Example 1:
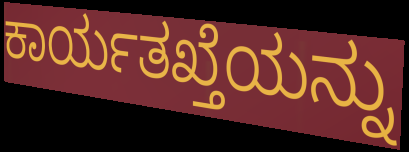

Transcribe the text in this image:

ಕಾರ್ಯತಖ್ತೆಯನ್ನು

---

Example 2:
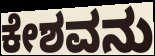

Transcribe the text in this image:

ಕೇಶವನು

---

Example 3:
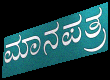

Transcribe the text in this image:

ಮಾನಪತ್ರ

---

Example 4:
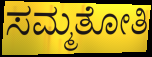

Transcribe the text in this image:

ಸಮ್ಮತೋತಿ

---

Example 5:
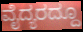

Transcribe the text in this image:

ವೈದ್ಯರದ್ದೂ